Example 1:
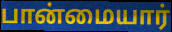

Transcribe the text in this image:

பான்மையார்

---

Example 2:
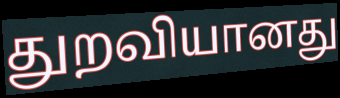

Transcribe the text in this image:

துறவியானது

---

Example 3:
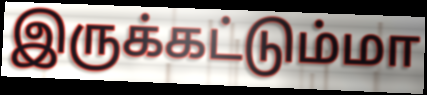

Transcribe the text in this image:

இருக்கட்டும்மா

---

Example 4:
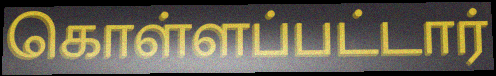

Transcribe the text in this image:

கொள்ளப்பட்டார்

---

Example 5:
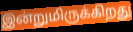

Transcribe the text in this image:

இன்றுமிருக்கிறது